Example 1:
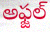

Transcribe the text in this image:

అఫ్జల్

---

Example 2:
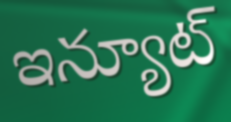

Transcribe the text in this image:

ఇన్యూట్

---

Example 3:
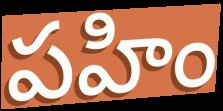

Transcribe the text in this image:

పహిం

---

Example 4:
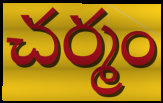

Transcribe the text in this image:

చర్మం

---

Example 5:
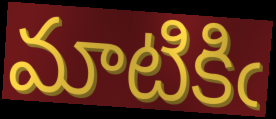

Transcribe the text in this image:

మాటికిఁ